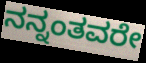
ನನ್ನಂತವರೇ